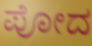
ಪೋದ